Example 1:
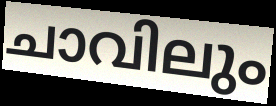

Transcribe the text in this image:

ചാവിലും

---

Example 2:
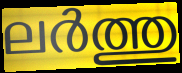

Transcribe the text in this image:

ലർത്തു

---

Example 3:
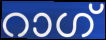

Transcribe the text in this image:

റാഗ്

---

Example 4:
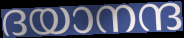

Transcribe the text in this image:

ദയാനന്ദ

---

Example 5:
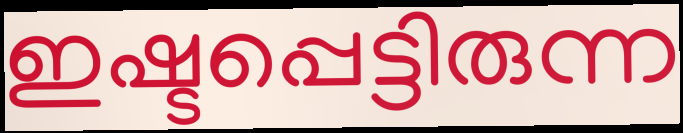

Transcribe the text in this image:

ഇഷ്ടപ്പെട്ടിരുന്ന